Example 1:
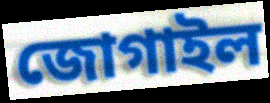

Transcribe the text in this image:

জোগাইল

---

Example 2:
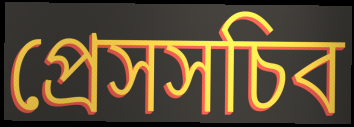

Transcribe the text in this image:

প্রেসসচিব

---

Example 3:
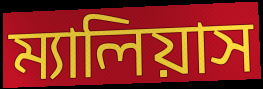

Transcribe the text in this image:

ম্যালিয়াস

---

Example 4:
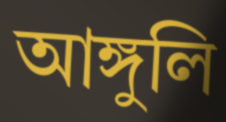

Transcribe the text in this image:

আঙ্গুলি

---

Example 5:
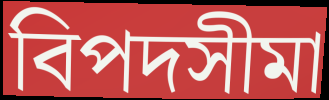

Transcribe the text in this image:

বিপদসীমা